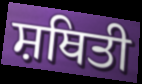
ਸ਼ਥਿਤੀ